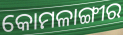
କୋମଳାଙ୍ଗୀର